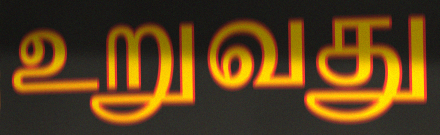
உறுவது